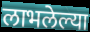
लाभलेल्या